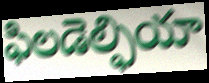
ఫిలడెల్ఫియా